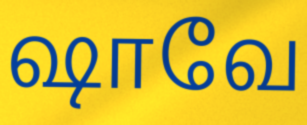
ஷாவே